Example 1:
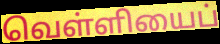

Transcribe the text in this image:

வெள்ளியைப்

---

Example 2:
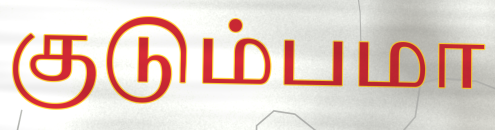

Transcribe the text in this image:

குடும்பமா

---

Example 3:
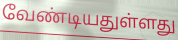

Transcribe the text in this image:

வேண்டியதுள்ளது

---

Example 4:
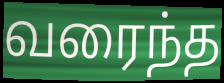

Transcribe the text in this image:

வரைந்த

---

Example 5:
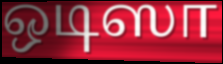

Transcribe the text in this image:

ஒடிஸா